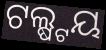
ଟଲ୍ଷ୍ଟୟ